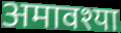
अमावश्या